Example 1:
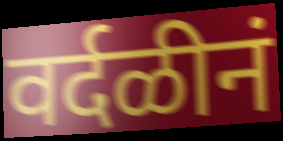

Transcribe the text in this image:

वर्दळीनं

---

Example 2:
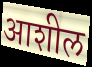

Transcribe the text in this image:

आशील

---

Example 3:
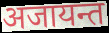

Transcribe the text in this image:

अजायन्त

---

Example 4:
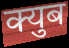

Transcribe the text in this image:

क्युब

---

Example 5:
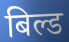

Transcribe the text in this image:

बिल्ड